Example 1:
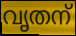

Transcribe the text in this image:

വൃതന്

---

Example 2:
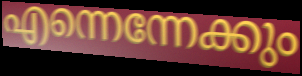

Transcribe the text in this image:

എന്നെന്നേക്കും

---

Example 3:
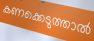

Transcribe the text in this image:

കണക്കെടുത്താൽ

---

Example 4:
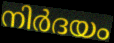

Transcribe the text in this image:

നിർദയം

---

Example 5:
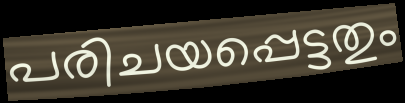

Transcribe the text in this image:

പരിചയപ്പെട്ടതും